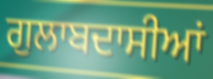
ਗੁਲਾਬਦਾਸੀਆਂ